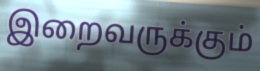
இறைவருக்கும்